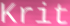
Krit